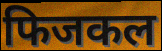
फिजकल